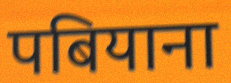
पबियाना